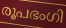
രൂപഭംഗി